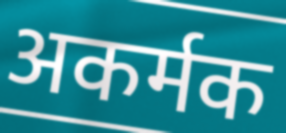
अकर्मक